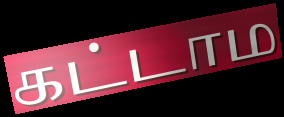
கட்டாம